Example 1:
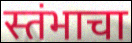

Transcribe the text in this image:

स्तंभाचा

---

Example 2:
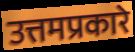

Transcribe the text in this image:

उत्तमप्रकारे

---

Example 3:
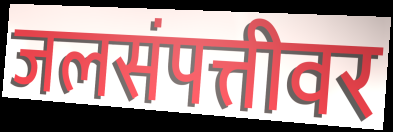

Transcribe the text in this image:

जलसंपत्तीवर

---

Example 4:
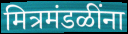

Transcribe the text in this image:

मित्रमंडळींना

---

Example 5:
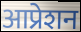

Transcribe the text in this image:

आप्रेशन